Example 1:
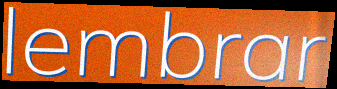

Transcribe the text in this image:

lembrar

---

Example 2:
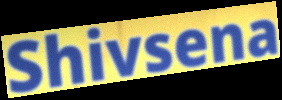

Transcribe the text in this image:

Shivsena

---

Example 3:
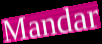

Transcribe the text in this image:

Mandar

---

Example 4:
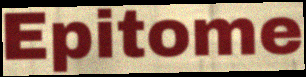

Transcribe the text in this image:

Epitome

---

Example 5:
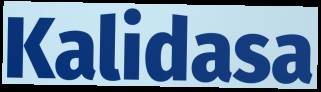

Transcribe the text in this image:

Kalidasa